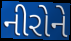
નીરોને